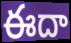
ఈదా